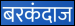
बरकंदाज